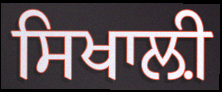
ਸਿਖਾਲ਼ੀ